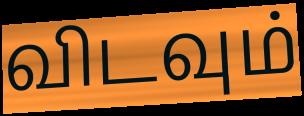
விடவும்